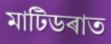
মাটিডৰাত